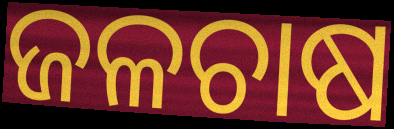
ଜଳଚାଷ